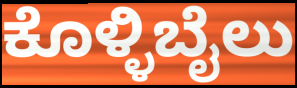
ಕೊಳ್ಳಿಬೈಲು